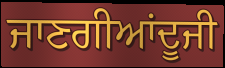
ਜਾਣਗੀਆਂਦੂਜੀ